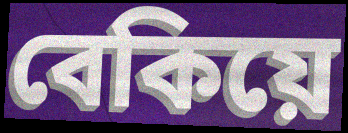
বেকিয়ে